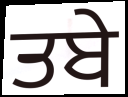
ਤਬੇ